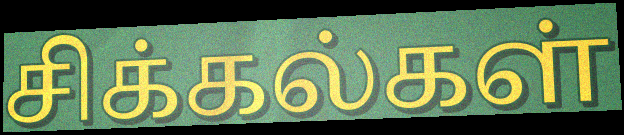
சிக்கல்கள்